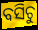
ବସିଚୁ